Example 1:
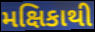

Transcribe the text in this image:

મક્ષિકાથી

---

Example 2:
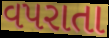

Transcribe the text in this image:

વપરાતા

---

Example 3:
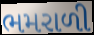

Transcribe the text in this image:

ભમરાળી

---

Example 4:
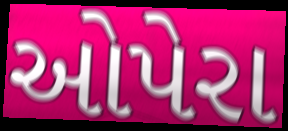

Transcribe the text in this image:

ઓપેરા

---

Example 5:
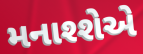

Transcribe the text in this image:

મનાશ્શેએ